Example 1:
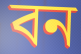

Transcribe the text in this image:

বন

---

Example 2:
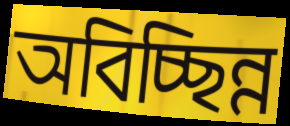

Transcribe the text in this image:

অবিচ্ছিন্ন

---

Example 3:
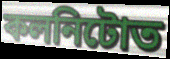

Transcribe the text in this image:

কলনিটোত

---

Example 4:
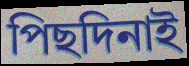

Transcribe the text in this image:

পিছদিনাই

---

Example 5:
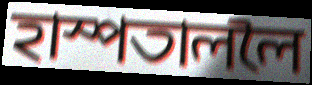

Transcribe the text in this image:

হাস্পতাললৈ